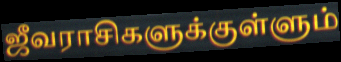
ஜீவராசிகளுக்குள்ளும்